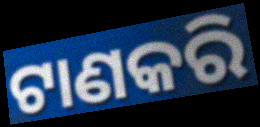
ଟାଣକରି